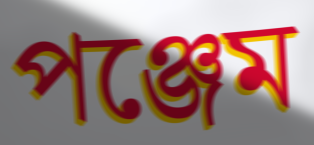
পঞ্জেম